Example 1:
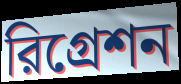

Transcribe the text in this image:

রিগ্রেশন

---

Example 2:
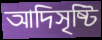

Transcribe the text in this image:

আদিসৃষ্টি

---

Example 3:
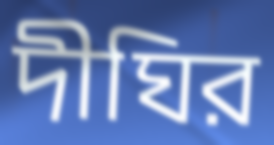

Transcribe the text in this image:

দীঘির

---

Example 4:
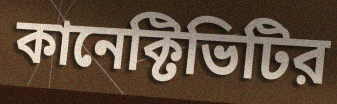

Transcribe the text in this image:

কানেক্টিভিটির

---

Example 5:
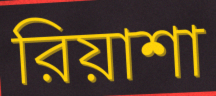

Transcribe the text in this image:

রিয়াশা